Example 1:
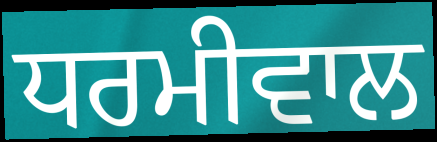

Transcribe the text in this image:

ਧਰਮੀਵਾਲ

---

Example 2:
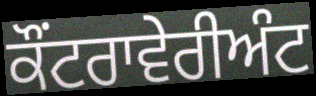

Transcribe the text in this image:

ਕੌਂਟਰਾਵੇਰੀਅੰਟ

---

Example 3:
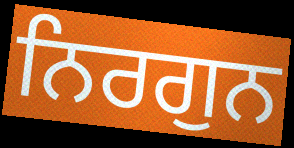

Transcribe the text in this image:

ਨਿਰਗੁਨ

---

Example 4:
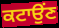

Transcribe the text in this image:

ਕਟਾਉਂਣ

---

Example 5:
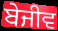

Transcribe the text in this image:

ਬੇਜੀਵ